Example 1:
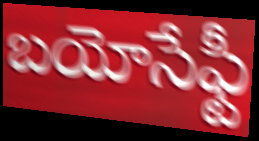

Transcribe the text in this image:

బయోసేఫ్టీ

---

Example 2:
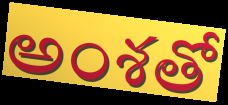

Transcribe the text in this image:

అంశతో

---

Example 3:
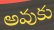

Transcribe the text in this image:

అవుకు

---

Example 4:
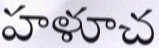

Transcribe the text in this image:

హళూచ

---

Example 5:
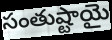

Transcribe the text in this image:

సంతుష్టాయై